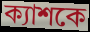
ক্যাশকে